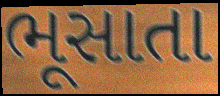
ભૂસાતા